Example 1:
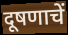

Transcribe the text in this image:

दूषणाचें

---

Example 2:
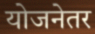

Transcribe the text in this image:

योजनेतर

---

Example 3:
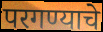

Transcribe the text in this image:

परगण्याचे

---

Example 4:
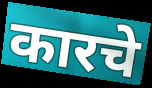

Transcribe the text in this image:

कारचे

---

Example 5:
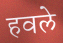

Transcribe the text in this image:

हवले